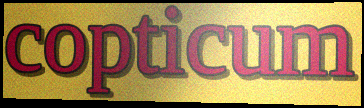
copticum